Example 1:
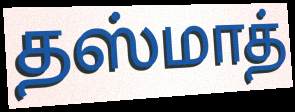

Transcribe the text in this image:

தஸ்மாத்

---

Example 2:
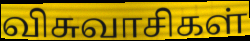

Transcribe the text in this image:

விசுவாசிகள்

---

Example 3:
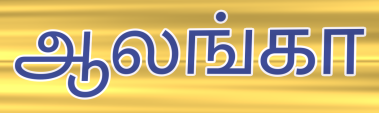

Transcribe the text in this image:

ஆலங்கா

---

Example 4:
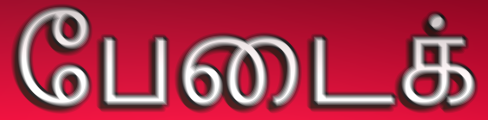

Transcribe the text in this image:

பேடைக்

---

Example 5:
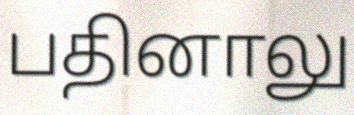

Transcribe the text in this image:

பதினாலு